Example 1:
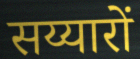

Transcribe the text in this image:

सय्यारों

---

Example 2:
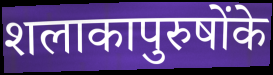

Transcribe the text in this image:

शलाकापुरुषोंके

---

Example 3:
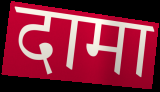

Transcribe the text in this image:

दामा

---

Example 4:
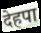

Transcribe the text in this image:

देहपा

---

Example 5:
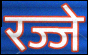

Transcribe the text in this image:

रज्जे